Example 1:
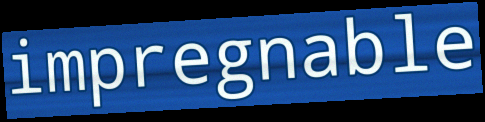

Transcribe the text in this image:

impregnable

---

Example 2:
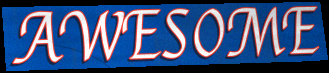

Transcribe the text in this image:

AWESOME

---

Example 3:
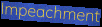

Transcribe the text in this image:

Impeachment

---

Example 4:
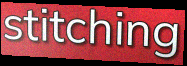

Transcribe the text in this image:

stitching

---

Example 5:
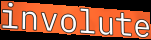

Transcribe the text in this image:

involute